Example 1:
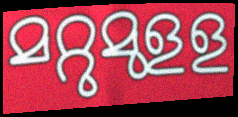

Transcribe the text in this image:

മറ്റുമുളള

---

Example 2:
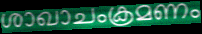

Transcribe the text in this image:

ശാഖാചംക്രമണം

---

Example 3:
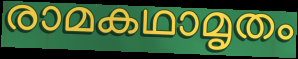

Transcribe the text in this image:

രാമകഥാമൃതം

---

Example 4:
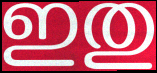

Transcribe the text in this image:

ഇതു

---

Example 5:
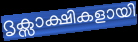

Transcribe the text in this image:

ദൃക്സാക്ഷികളായി